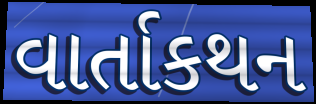
વાર્તાકથન